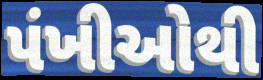
પંખીઓથી